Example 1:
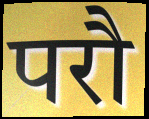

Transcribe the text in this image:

परौ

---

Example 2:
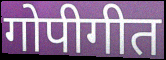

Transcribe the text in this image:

गोपीगीत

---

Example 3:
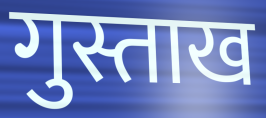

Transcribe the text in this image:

गुस्ताख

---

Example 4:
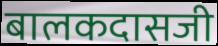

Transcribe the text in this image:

बालकदासजी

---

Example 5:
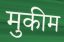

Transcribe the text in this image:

मुकीम